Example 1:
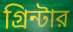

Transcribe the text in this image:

গ্রিন্টার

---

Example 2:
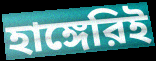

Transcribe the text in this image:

হাঙ্গেরিই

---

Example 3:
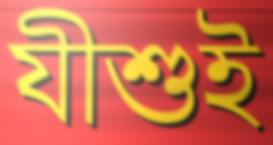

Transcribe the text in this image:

যীশুই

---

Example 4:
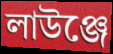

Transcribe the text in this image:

লাউঞ্জে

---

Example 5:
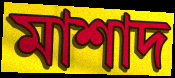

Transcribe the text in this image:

মাশাদ